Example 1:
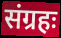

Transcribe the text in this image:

संग्रहः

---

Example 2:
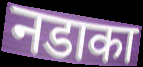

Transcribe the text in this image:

नडाका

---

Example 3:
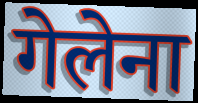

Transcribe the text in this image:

गेलेना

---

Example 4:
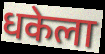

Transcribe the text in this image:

धकेला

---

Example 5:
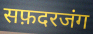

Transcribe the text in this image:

सफ़दरजंग